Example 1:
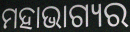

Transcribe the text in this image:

ମହାଭାଗ୍ୟର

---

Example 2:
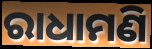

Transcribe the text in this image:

ରାଧାମଣି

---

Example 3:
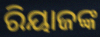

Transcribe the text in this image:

ରିୟାଜଙ୍କ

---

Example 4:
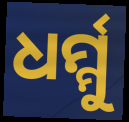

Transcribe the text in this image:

ଧର୍ମ୍ମୁ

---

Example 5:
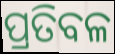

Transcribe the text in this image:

ପ୍ରତିବଳ